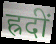
ह्रदीं